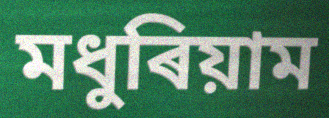
মধুৰিয়াম